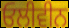
ਓਲੀਵੀਨ